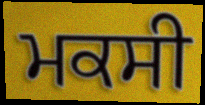
ਮਕਸੀ